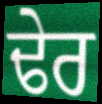
ਢੇਰ